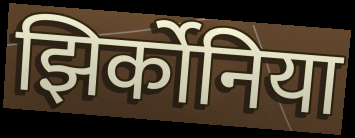
झिर्कोनिया